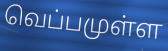
வெப்பமுள்ள